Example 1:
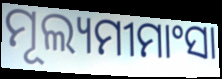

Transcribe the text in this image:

ମୂଲ୍ୟମୀମାଂସା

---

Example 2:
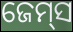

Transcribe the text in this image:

ଜେମ୍‍ସ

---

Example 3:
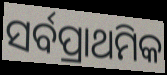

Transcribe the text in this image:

ସର୍ବପ୍ରାଥମିକ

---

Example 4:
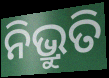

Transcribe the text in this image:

ନିଭ୍ରୁତି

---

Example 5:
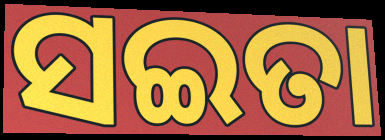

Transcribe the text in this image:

ସଇତା